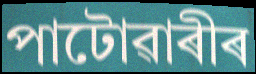
পাটোৱাৰীৰ